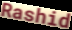
Rashid